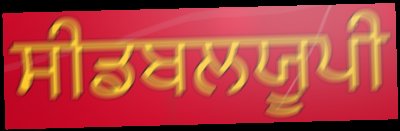
ਸੀਡਬਲਯੂਪੀ